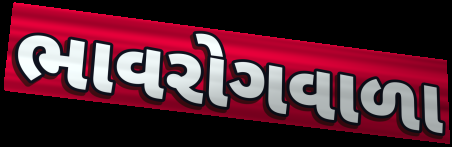
ભાવરોગવાળા